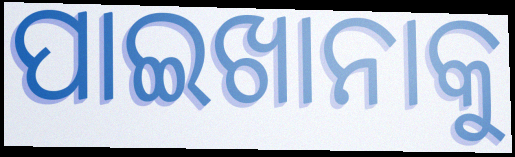
ପାଇଖାନାକୁ